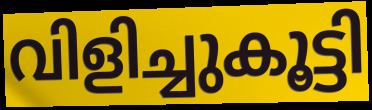
വിളിച്ചുകൂട്ടി